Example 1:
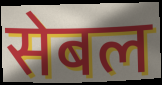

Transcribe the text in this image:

सेबल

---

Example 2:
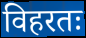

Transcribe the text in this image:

विहरतः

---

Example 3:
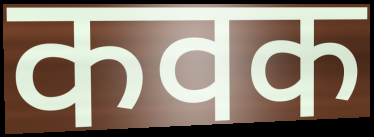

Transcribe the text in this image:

कवक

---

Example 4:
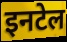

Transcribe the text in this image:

इनटेल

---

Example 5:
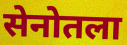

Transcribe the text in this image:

सेनोतला